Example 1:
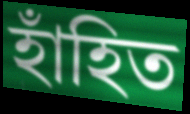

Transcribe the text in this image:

হাঁহিত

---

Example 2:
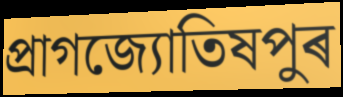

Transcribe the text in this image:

প্ৰাগজ্যোতিষপুৰ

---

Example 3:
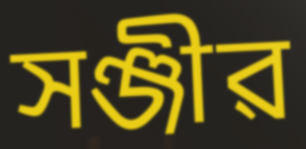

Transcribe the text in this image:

সঞ্জীৱ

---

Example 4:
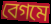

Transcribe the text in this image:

বেগমে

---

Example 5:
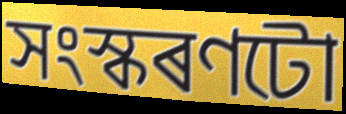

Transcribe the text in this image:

সংস্কৰণটো